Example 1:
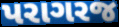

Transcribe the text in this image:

પરાગરજ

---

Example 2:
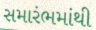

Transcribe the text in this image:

સમારંભમાંથી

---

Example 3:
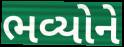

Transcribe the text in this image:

ભવ્યોને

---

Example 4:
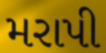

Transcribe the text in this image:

મરાપી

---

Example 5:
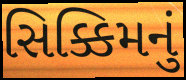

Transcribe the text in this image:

સિક્કિમનું